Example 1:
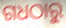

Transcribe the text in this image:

ଗଧଠାରୁ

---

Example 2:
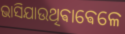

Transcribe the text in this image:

ଭାସିଯାଉଥିଵାଵେଳେ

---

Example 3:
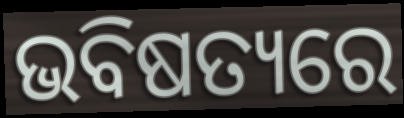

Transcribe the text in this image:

ଭବିଷତ୍ୟରେ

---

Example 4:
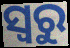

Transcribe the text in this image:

ସ୍ୱରୁ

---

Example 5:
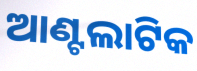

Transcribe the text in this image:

ଆଣ୍ଟଲାଟିକ